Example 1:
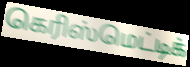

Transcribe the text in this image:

கெரிஸ்மெட்டிக்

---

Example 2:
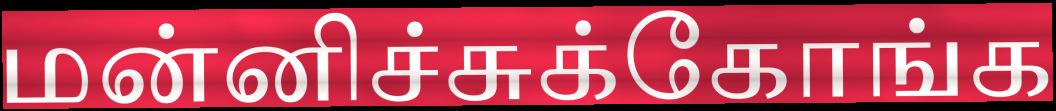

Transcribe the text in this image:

மன்னிச்சுக்கோங்க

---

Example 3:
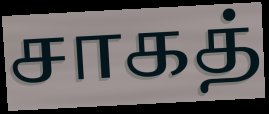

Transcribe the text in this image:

சாகத்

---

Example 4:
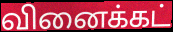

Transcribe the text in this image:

வினைக்கட்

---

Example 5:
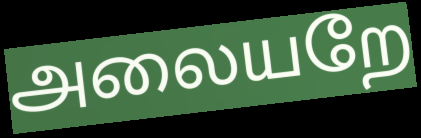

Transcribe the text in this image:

அலையறே